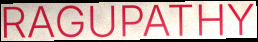
RAGUPATHY